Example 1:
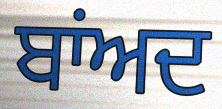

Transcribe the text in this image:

ਬਾਂਅਦ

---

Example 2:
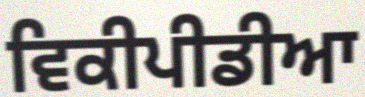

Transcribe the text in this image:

ਵਿਕੀਪੀਡੀਆ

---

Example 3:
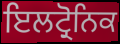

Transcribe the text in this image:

ਇਲਟ੍ਰੋਨਿਕ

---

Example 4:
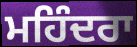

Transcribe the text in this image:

ਮਹਿੰਦਰਾ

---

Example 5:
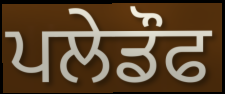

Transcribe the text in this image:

ਪਲੇਡੌਫ